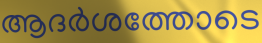
ആദർശത്തോടെ